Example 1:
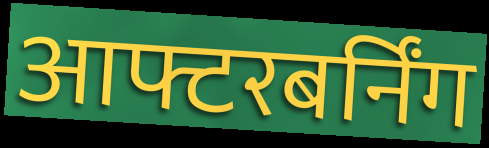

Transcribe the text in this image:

आफ्टरबर्निंग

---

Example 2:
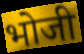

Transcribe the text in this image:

भोजी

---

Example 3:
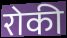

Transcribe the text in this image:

रोकी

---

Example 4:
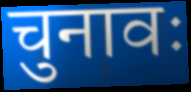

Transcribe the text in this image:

चुनावः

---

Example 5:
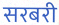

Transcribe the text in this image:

सरबरी